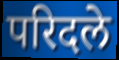
परिदले